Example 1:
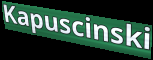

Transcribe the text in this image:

Kapuscinski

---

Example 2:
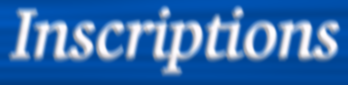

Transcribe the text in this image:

Inscriptions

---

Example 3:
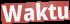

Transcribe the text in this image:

Waktu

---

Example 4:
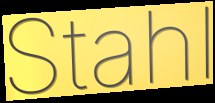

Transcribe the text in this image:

Stahl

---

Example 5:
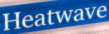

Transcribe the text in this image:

Heatwave